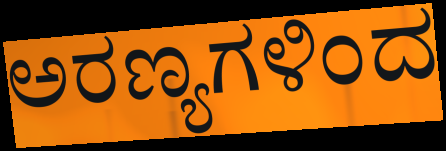
ಅರಣ್ಯಗಳಿಂದ